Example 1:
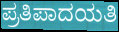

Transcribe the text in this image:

ಪ್ರತಿಪಾದಯತಿ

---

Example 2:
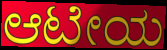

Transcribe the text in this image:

ಆಟೇಯ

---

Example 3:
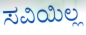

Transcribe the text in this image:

ಸವಿಯಿಲ್ಲ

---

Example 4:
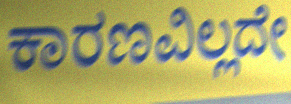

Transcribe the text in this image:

ಕಾರಣವಿಲ್ಲದೇ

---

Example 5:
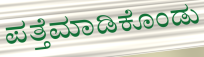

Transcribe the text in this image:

ಪತ್ತೆಮಾಡಿಕೊಂಡು